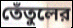
তেঁতুলের